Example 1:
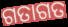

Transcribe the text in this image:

ଗତାଗତ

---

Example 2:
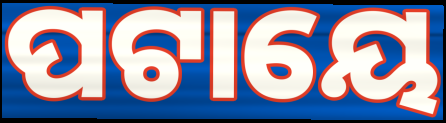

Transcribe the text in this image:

ପଟାୟେ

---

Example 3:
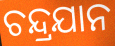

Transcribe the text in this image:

ଚନ୍ଦ୍ରଯାନ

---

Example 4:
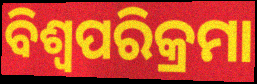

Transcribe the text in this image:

ବିଶ୍ୱପରିକ୍ରମା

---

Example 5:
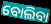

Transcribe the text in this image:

ବୋଲିବା